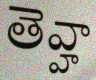
తెవ్హా